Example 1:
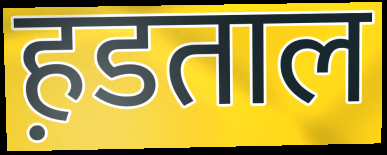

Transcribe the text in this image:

ह़डताल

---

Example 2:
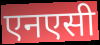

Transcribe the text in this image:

एनएसी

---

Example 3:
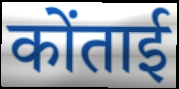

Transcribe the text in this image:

कोंताई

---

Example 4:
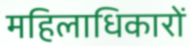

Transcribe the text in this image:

महिलाधिकारों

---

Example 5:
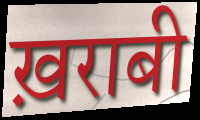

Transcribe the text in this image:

ख़राबी